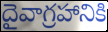
దైవాగ్రహానికి